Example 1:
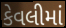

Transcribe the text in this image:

કેવલીમાં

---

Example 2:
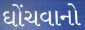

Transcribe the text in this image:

ઘોંચવાનો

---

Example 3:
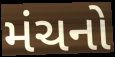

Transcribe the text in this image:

મંચનો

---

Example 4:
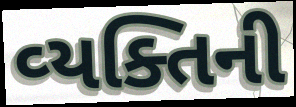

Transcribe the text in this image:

વ્‍યક્તિની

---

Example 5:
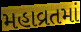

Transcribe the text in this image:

મહાવ્રતમાં